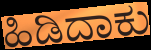
ಹಿಡಿದಾಕು